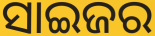
ସାଇଜର